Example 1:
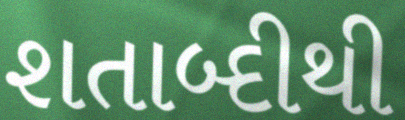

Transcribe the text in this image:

શતાબ્દીથી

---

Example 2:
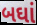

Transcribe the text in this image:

બઘાં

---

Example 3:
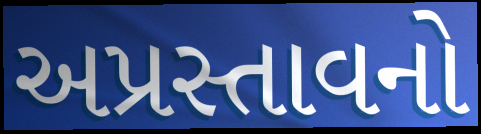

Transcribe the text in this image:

અપ્રસ્તાવનો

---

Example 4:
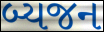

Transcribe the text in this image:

બ્યજન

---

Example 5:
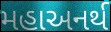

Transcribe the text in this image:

મહાઅનર્થ